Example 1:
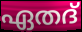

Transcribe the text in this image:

ഏതദ്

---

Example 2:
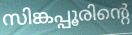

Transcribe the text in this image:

സിങ്കപ്പൂരിന്റെ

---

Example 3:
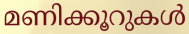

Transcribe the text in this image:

മണിക്കൂറുകൾ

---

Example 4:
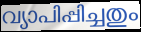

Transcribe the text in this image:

വ്യാപിപ്പിച്ചതും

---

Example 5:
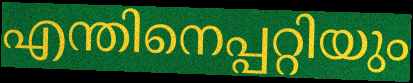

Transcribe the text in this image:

എന്തിനെപ്പറ്റിയും